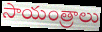
సాయంత్రాలు